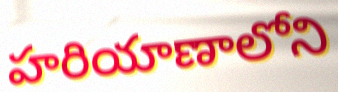
హరియాణాలోని